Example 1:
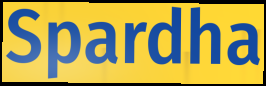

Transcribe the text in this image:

Spardha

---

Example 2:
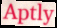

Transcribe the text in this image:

Aptly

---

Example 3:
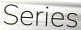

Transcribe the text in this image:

Series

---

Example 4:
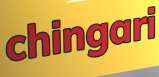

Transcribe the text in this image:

chingari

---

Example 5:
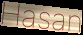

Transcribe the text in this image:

Hasan